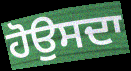
ਹੋਉਸਦਾ